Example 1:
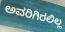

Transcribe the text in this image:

ಅವರಿಗಿರಲಿಲ್ಲ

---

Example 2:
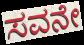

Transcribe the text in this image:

ಸವನೇ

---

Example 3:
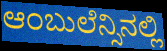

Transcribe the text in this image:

ಆಂಬುಲೆನ್ಸಿನಲ್ಲಿ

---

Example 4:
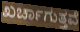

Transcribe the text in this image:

ಖರ್ಚಾಗುತ್ತವೆ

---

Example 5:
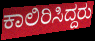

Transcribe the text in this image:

ಕಾಲಿರಿಸಿದ್ದರು